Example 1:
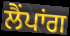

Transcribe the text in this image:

ਲੈਂਪਾਂਗ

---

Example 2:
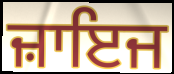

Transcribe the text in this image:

ਜ਼ਾਇਜ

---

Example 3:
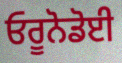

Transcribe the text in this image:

ਓਰੂਨੋਡੋਈ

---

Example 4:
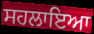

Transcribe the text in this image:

ਸਹਲਾਇਆ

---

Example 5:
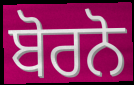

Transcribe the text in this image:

ਬੋਰਨੋ